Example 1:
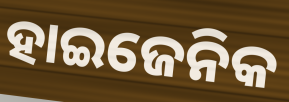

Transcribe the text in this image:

ହାଇଜେନିକ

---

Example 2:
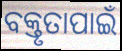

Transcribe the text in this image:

ବକ୍ତୃତାପାଇଁ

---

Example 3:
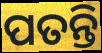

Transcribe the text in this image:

ପତନ୍ତି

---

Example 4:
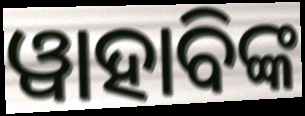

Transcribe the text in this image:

ୱାହାବିଙ୍କ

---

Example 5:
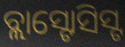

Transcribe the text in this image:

ବ୍ଲାସ୍ଟୋସିସ୍ଟ